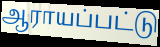
ஆராயப்பட்டு